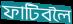
ফাটিবলৈ